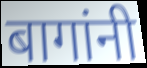
बागांनी